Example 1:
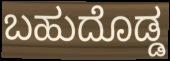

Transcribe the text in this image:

ಬಹುದೊಡ್ಡ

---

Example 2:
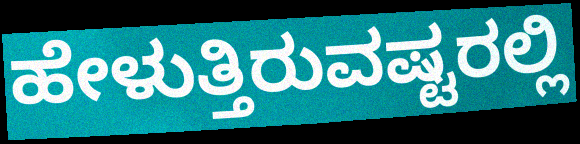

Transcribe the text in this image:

ಹೇಳುತ್ತಿರುವಷ್ಟರಲ್ಲಿ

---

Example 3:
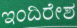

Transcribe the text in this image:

ಇಂದಿರೇಶ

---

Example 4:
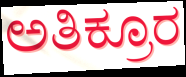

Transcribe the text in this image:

ಅತಿಕ್ರೂರ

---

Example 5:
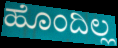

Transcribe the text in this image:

ಹೊಂದಿಲ್ಲ